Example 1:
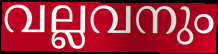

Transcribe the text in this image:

വല്ലവനും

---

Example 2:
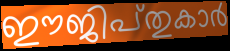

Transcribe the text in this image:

ഈജിപ്‌തുകാർ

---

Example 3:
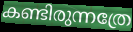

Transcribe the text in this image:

കണ്ടിരുന്നത്രേ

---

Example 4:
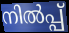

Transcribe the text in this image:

നിൽപ്പ്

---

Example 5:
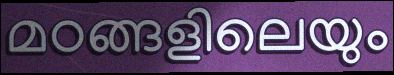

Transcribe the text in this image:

മഠങ്ങളിലെയും